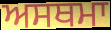
ਅਸਥਮਾ